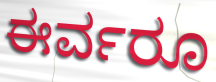
ಈರ್ವರೂ